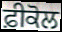
ਫ਼ੀਕੋਲ